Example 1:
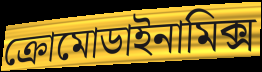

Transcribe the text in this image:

ক্রোমোডাইনামিক্স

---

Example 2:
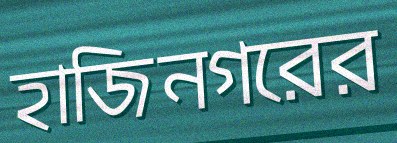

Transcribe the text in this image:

হাজিনগরের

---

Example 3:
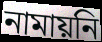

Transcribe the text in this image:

নামায়নি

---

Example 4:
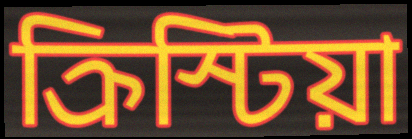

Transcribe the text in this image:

ক্রিস্টিয়া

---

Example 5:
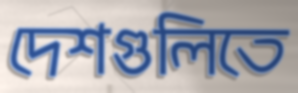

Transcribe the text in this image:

দেশগুলিতে